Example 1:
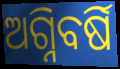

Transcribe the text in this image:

ଅଗ୍ନିବର୍ଷି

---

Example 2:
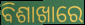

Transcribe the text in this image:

ବିଶାଖାରେ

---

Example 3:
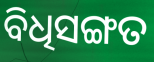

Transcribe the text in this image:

ବିଧିସଙ୍ଗତ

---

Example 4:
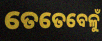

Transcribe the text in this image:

ତେତେବେଳୁଁ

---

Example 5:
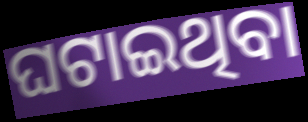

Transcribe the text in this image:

ଘଟାଇଥିବା